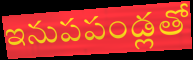
ఇనుపపండ్లతో